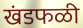
खंडफळी